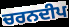
ਚਰਨਦੀਪ